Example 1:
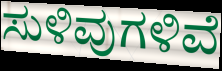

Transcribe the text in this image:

ಸುಳಿವುಗಳಿವೆ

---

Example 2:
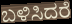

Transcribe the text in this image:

ಬಳಿಸಿದರೆ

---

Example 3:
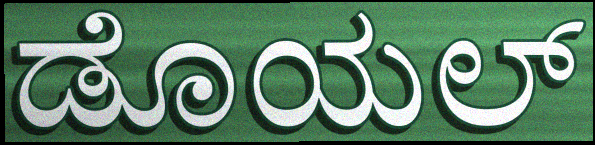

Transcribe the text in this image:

ಡೊಯಲ್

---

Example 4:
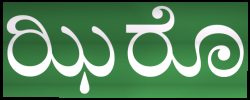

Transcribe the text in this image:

ಝಿರೊ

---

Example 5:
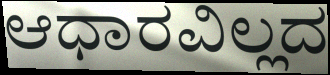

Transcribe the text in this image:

ಆಧಾರವಿಲ್ಲದ